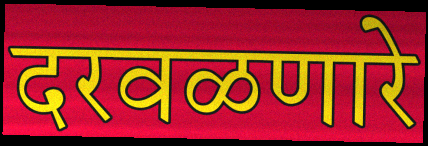
दरवळणारे